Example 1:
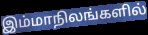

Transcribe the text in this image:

இம்மாநிலங்களில்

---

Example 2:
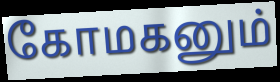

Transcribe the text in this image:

கோமகனும்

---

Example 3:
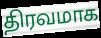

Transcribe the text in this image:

திரவமாக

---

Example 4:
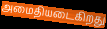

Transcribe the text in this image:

அமைதியடைகிறது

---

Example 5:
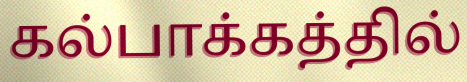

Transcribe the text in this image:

கல்பாக்கத்தில்